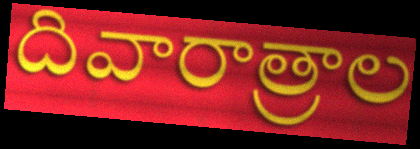
దివారాత్రాల